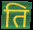
ति